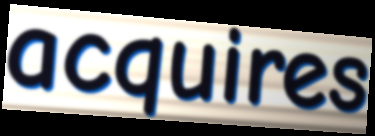
acquires